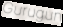
Gurugun